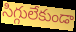
సిగ్గులేకుండా